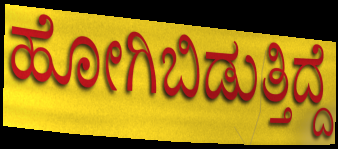
ಹೋಗಿಬಿಡುತ್ತಿದ್ದೆ